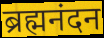
ब्रह्मनंदन